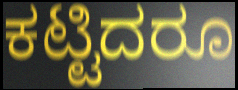
ಕಟ್ಟಿದರೂ